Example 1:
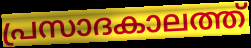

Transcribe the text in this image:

പ്രസാദകാലത്ത്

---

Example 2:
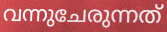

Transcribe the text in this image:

വന്നുചേരുന്നത്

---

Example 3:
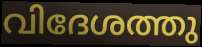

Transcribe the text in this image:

വിദേശത്തു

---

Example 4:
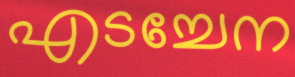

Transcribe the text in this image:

എടച്ചേന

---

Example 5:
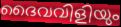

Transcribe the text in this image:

ദൈവവിളിയും